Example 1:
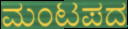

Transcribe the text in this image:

ಮಂಟಪದ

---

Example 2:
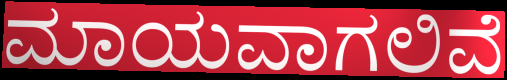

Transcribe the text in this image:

ಮಾಯವಾಗಲಿವೆ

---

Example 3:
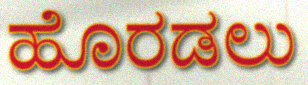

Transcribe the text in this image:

ಹೊರಡಲು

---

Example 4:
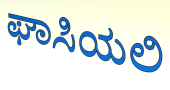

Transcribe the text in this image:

ಘಾಸಿಯಲಿ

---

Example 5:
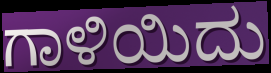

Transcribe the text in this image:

ಗಾಳಿಯಿದು